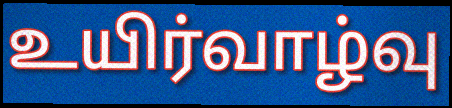
உயிர்வாழ்வு